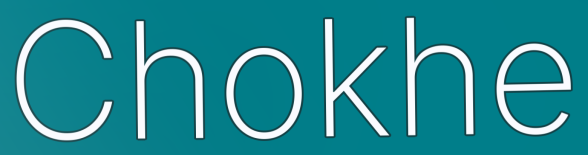
Chokhe